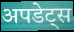
अपडेट्स